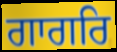
ਗਾਗਰਿ